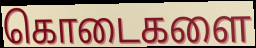
கொடைகளை